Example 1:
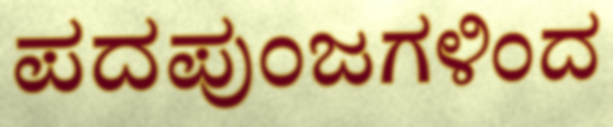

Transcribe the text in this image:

ಪದಪುಂಜಗಳಿಂದ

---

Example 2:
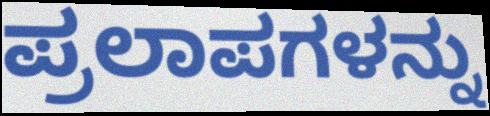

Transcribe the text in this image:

ಪ್ರಲಾಪಗಳನ್ನು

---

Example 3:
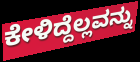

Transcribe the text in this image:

ಕೇಳಿದ್ದೆಲ್ಲವನ್ನು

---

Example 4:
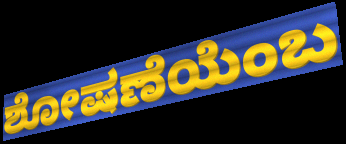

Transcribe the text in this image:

ಶೋಷಣೆಯೆಂಬ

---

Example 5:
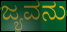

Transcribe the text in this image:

ಜ್ಯವನು